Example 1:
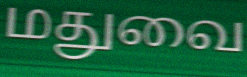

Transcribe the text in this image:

மதுவை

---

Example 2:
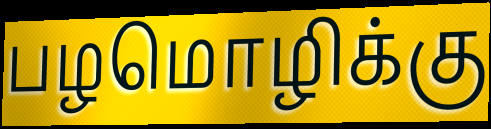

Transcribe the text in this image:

பழமொழிக்கு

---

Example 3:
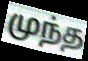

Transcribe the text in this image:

முந்த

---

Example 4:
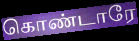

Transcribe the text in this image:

கொண்டாரே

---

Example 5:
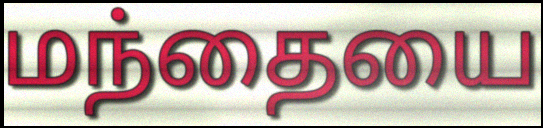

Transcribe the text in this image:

மந்தையை